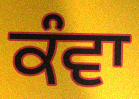
ਕੰਵਾ